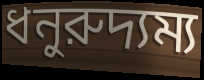
ধনুরুদ্যম্য